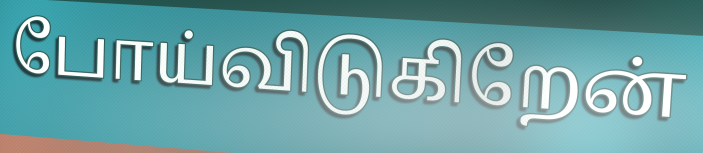
போய்விடுகிறேன்